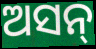
ଅସନ୍